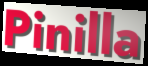
Pinilla